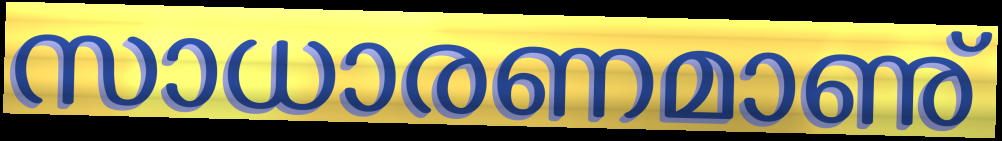
സാധാരണമാണു്